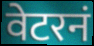
वेटरनं